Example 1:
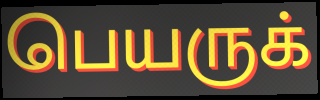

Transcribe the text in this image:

பெயருக்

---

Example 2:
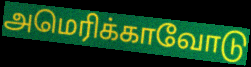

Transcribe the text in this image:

அமெரிக்காவோடு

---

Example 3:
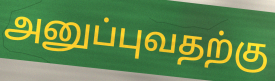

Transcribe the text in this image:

அனுப்புவதற்கு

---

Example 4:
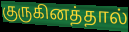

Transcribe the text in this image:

குருகினத்தால்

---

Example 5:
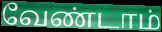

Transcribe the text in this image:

வேண்டாம்